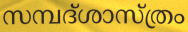
സമ്പദ്ശാസ്ത്രം